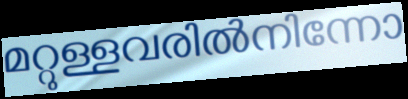
മറ്റുള്ളവരിൽനിന്നോ